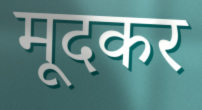
मूदकर